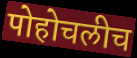
पोहोचलीच